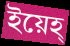
ইয়েহ্